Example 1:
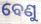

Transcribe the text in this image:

ବେଣୁ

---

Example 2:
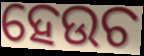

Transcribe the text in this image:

ହେଉଚ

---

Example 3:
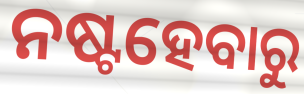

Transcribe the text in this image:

ନଷ୍ଟହେବାରୁ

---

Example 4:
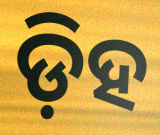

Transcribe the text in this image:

ଡ଼ିହ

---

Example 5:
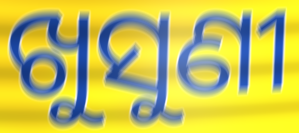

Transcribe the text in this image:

ଖୁସୁଣୀ